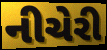
નીચેરી